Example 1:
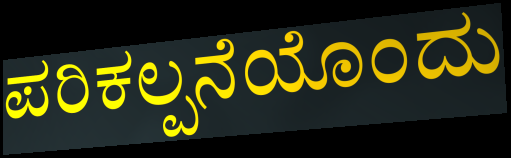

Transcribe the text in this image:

ಪರಿಕಲ್ಪನೆಯೊಂದು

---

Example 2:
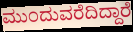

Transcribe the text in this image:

ಮುಂದುವರೆದಿದ್ದಾರೆ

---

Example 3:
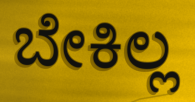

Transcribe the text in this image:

ಬೇಕಿಲ್ಲ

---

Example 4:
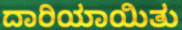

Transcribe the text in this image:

ದಾರಿಯಾಯಿತು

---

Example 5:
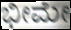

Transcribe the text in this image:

ಭೀಮೇ